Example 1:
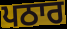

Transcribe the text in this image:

ਪਠਾਰ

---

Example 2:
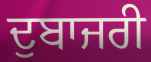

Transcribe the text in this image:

ਦੁਬਾਜਰੀ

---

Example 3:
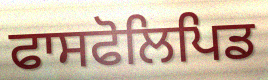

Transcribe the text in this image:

ਫਾਸਫੋਲਿਪਿਡ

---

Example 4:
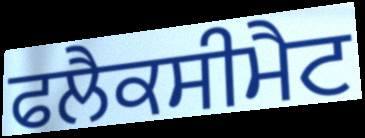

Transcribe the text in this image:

ਫਲੈਕਸੀਮੈਟ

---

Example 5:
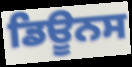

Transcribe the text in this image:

ਡਿਊਨਸ